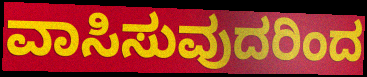
ವಾಸಿಸುವುದರಿಂದ